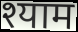
श्याम